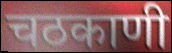
चठकाणी